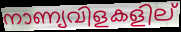
നാണ്യവിളകളില്